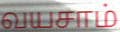
வயசாம்